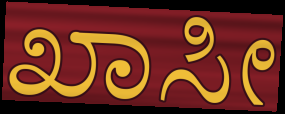
ಖಾಸೀ